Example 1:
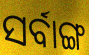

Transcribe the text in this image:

ସର୍ବାଙ୍ଗ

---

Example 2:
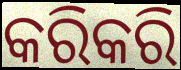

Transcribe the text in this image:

କରିକରି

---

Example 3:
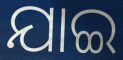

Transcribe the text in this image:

ଯାଇ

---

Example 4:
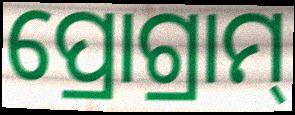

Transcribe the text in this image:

ପ୍ରୋଗ୍ରାମ୍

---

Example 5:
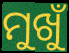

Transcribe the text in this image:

ମୁଖୁଁ